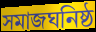
সমাজঘনিষ্ঠ